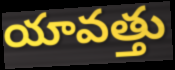
యావత్తు